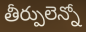
తీర్పులెన్నో